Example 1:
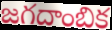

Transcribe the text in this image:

జగదాంబిక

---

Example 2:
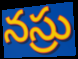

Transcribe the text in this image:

నస్రు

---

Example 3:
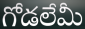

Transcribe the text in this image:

గోడలేమీ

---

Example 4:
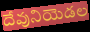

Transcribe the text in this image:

దేవునియెడల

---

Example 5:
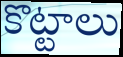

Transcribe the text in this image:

కొట్టాలు